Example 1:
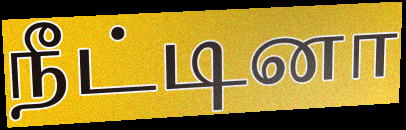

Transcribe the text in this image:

நீட்டினா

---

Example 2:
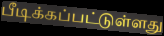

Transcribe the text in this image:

பீடிக்கப்பட்டுள்ளது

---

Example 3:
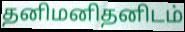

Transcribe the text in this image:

தனிமனிதனிடம்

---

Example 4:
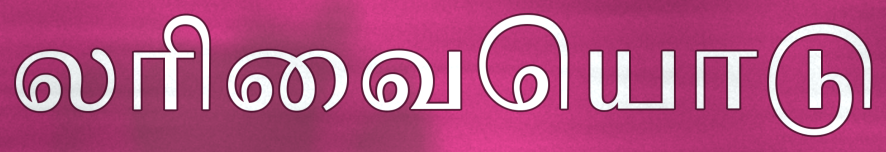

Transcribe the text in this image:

லரிவையொடு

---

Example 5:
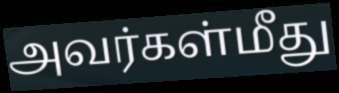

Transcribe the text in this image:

அவர்கள்மீது